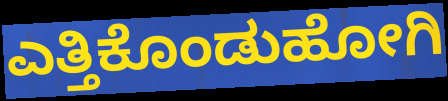
ಎತ್ತಿಕೊಂಡುಹೋಗಿ